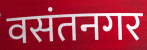
वसंतनगर